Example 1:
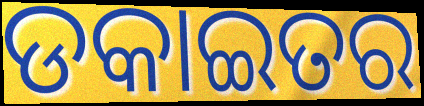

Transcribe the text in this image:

ଡକାଇତର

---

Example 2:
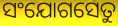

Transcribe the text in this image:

ସଂଯୋଗସେତୁ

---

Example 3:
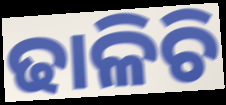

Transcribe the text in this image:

ଢାଳିଚି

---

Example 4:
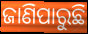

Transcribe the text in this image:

ଜାଣିପାରୁଛି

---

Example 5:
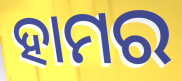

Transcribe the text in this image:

ହାମର